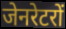
जेनरेटरों